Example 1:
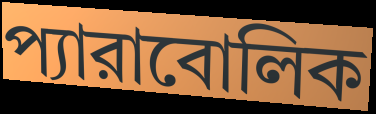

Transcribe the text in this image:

প্যারাবোলিক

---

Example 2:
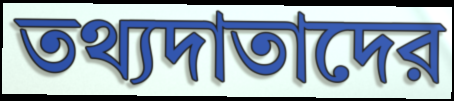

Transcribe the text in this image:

তথ্যদাতাদের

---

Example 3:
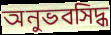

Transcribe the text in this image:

অনুভবসিদ্ধ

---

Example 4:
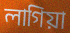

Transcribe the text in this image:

লাগিয়া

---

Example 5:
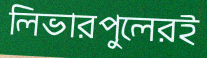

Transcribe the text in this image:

লিভারপুলেরই